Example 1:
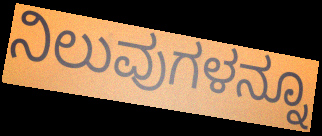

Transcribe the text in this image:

ನಿಲುವುಗಳನ್ನೂ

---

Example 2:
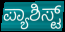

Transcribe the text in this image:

ಪ್ಯಾಶಿಸ್ಟ್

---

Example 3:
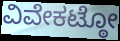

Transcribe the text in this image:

ವಿವೇಕಟ್ಠೋ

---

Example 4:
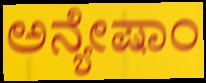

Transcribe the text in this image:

ಅನ್ಯೇಷಾಂ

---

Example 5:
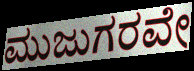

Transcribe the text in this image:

ಮುಜುಗರವೇ